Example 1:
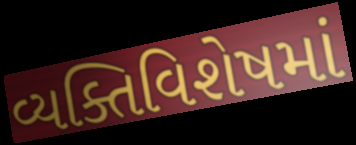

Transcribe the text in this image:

વ્યક્તિવિશેષમાં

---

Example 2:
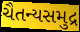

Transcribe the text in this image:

ચૈતન્યસમુદ્ર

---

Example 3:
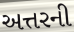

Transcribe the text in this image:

અત્તરની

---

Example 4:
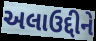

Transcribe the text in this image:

અલાઉદ્દીને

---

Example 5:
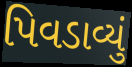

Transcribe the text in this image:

પિવડાવ્યું